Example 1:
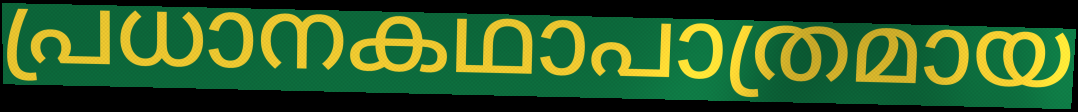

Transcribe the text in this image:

പ്രധാനകഥാപാത്രമായ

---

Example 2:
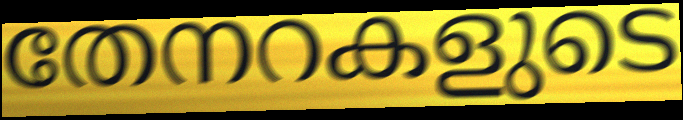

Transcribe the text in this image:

തേനറകളുടെ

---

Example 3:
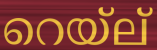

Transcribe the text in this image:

റെയ്ല്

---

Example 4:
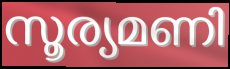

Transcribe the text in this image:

സൂര്യമണി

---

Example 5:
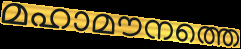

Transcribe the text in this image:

മഹാമൗനത്തെ